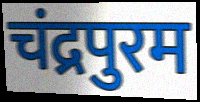
चंद्रपुरम